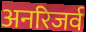
अनरिजर्व